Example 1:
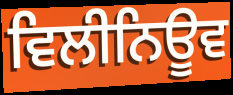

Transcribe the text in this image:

ਵਿਲੀਨਿਊਵ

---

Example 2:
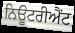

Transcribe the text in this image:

ਨਿਊਟਰੀਐਂਟ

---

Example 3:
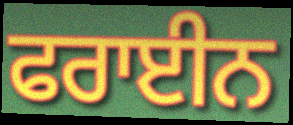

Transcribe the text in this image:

ਫਰਾਈਨ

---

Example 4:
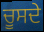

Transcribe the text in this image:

ਚੂਸਦੇ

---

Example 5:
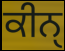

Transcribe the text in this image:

ਕੀਨੑ